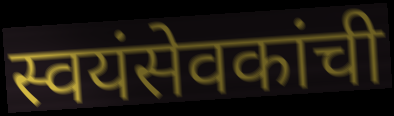
स्वयंसेवकांची